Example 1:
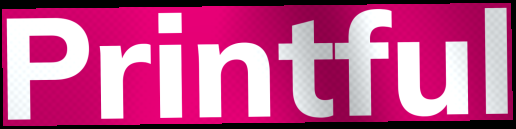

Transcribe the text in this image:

Printful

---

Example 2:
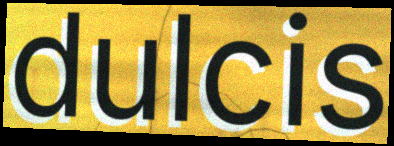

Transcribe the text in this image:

dulcis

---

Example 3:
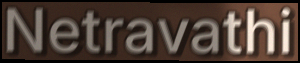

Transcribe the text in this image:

Netravathi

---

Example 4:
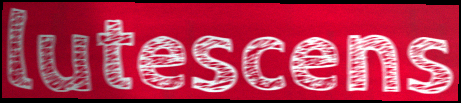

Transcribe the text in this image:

lutescens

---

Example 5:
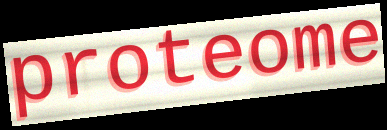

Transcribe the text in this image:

proteome